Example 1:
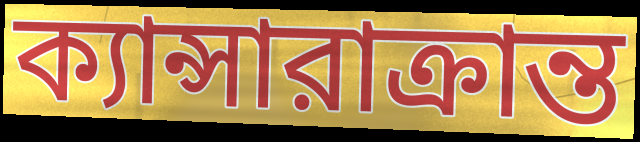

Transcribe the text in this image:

ক্যান্সারাক্রান্ত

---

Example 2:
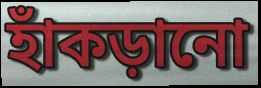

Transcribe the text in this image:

হাঁকড়ানো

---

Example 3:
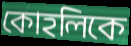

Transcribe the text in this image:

কোহলিকে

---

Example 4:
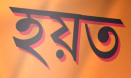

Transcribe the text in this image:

হয়ত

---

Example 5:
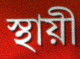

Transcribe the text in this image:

স্থায়ী